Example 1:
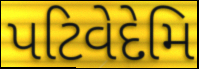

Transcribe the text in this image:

પટિવેદેમિ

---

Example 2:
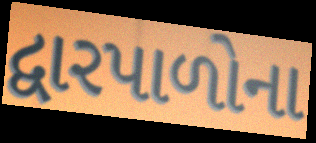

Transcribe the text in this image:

દ્વારપાળોના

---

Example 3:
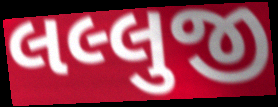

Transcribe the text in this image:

લલ્લુજી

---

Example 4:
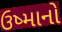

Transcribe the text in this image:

ઉષ્માનો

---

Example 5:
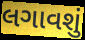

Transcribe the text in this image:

લગાવશું